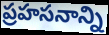
ప్రహసనాన్ని